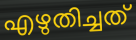
എഴുതിച്ചത്